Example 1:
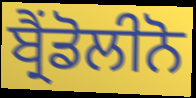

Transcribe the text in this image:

ਬ੍ਰੈਂਡੋਲੀਨੋ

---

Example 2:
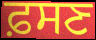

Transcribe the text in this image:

ਫ਼ਸਣ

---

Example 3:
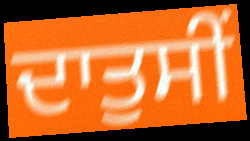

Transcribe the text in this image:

ਦਾਤੁਸੀਂ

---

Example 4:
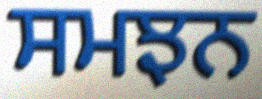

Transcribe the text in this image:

ਸਮਝਨ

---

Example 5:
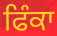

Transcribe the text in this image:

ਫਿੰਕਾ